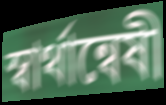
স্বার্থান্বেষী